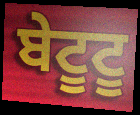
ਬੇਟੂਟੂ